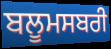
ਬਲੂਮਸਬਰੀ